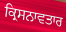
ਕ੍ਰਿਸਨਾਵਤਾਰ